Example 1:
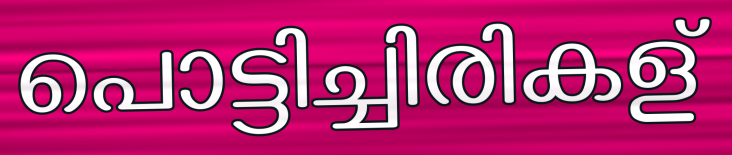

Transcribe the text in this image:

പൊട്ടിച്ചിരികള്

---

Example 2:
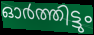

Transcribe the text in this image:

ഓർത്തിട്ടും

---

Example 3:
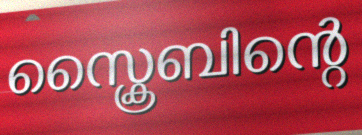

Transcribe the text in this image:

സ്ക്രൈബിന്റെ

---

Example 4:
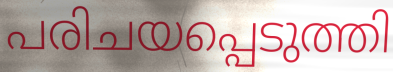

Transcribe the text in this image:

പരിചയപ്പെടുത്തി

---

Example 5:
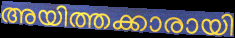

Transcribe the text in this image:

അയിത്തക്കാരായി